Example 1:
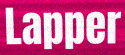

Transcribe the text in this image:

Lapper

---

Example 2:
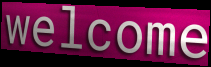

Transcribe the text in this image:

welcome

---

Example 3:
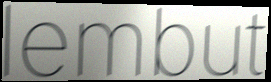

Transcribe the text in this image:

lembut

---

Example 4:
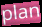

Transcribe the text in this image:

plan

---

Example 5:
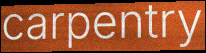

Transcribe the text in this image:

carpentry